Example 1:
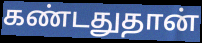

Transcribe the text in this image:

கண்டதுதான்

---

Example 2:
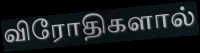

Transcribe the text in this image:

விரோதிகளால்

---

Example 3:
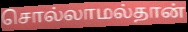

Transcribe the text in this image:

சொல்லாமல்தான்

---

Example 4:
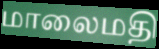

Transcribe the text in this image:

மாலைமதி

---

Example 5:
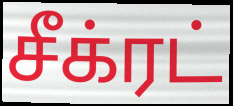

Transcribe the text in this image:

சீக்ரட்